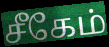
சீகேம்